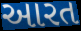
આરત